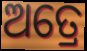
ଅତ୍ରେ